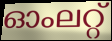
ഓംലറ്റ്